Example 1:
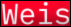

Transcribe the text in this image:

Weis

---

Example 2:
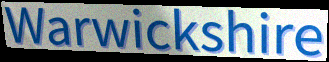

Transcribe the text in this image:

Warwickshire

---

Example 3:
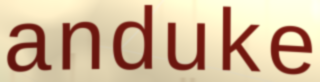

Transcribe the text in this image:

anduke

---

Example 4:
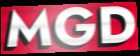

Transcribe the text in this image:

MGD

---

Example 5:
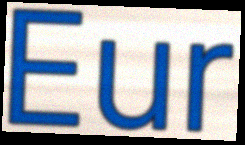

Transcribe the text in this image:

Eur